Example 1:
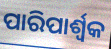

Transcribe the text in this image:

ପାରିପାର୍ଶ୍ବକ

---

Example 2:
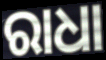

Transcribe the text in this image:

ରାଧା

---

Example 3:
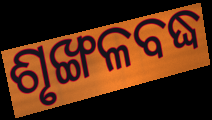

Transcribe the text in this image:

ଶୃଙ୍ଖଳବଦ୍ଧ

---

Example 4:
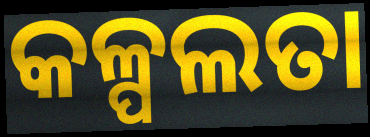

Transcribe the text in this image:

କଳ୍ପଲତା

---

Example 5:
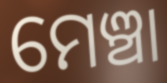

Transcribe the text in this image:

ମେଞ୍ଚା